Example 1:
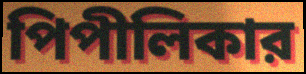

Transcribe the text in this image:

পিপীলিকার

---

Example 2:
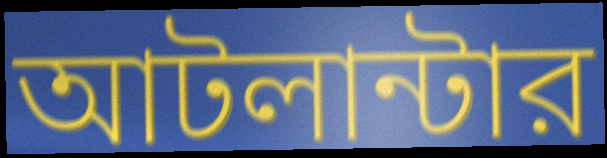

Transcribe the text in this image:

আটলান্টার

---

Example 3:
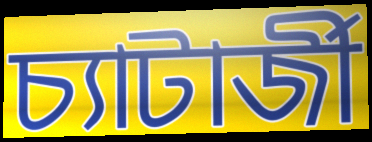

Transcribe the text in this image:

চ্যাটার্জী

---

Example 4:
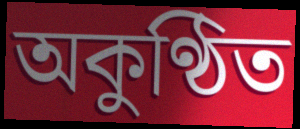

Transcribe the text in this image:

অকুণ্ঠিত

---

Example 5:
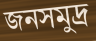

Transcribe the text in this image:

জনসমুদ্র